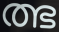
ത്ഭ